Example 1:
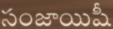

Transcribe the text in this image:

సంజాయిషీ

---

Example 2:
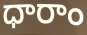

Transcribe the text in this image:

ధారాం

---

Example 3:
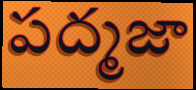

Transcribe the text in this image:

పద్మజా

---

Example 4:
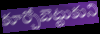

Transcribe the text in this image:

కూర్చోబెట్టుకుని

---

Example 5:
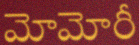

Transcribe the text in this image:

మోమోరీ